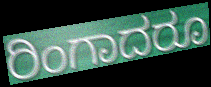
ರಿಂಗಾದರೂ